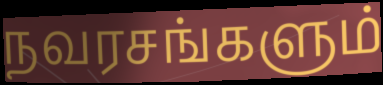
நவரசங்களும்